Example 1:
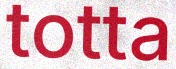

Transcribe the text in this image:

totta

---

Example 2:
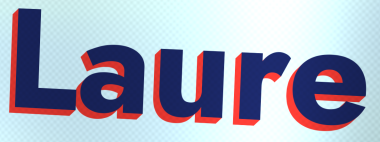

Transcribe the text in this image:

Laure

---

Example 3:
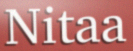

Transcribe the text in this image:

Nitaa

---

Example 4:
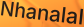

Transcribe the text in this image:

Nhanalal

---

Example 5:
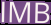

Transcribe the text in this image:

IMB